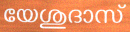
യേശുദാസ്